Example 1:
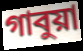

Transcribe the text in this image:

গাবুয়া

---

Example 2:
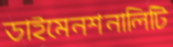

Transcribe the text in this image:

ডাইমেনশনালিটি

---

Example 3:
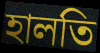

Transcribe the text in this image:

হালতি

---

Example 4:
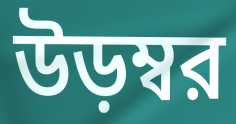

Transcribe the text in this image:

উড়ম্বর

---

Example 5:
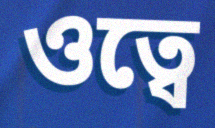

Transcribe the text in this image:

ওত্বে